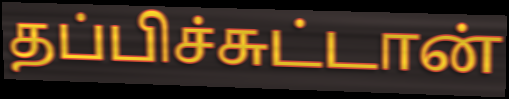
தப்பிச்சுட்டான்